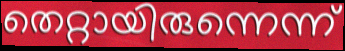
തെറ്റായിരുന്നെന്ന്